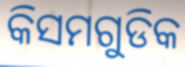
କିସମଗୁଡିକ